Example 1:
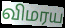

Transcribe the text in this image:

விமரய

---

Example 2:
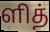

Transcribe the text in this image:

ளித்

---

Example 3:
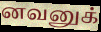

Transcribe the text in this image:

னவனுக்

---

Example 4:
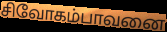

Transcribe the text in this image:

சிவோகம்பாவனை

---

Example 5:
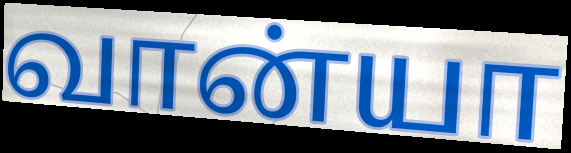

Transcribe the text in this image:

வான்யா